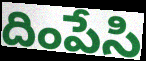
దింపేసి